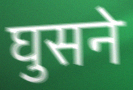
घुसने